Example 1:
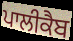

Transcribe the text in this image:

ਪਾਲੀਕੈਬ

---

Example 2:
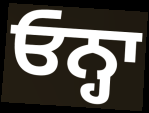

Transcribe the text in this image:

ਓਨ੍ਹਾ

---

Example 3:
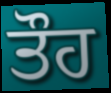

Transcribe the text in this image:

ਤੌਹ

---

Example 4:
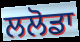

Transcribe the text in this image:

ਲਲੋਡਾ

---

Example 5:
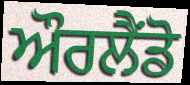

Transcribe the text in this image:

ਔਰਲੈਂਡੋ